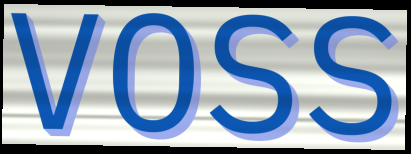
VOSS